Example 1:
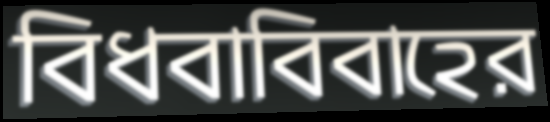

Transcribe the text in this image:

বিধবাবিবাহের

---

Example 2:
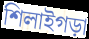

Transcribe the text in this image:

শিলাইগড়া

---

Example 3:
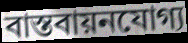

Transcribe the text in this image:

বাস্তবায়নযোগ্য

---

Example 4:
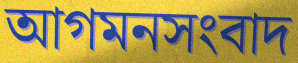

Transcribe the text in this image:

আগমনসংবাদ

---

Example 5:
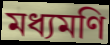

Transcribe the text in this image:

মধ্যমণি